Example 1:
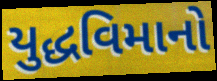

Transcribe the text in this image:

યુદ્ધવિમાનો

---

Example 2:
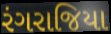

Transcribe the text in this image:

રંગરાજિયા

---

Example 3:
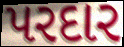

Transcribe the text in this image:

પરદાર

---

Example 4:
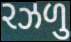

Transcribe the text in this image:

રઝળુ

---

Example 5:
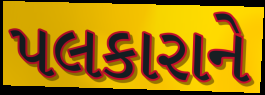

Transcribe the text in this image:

પલકારાને